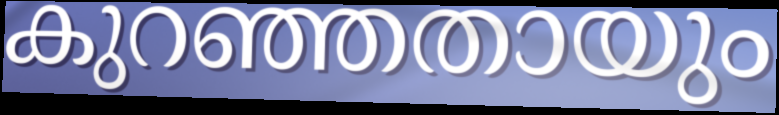
കുറഞ്ഞതായും